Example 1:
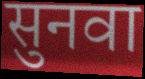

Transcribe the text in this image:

सुनवा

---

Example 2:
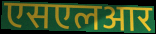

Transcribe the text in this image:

एसएलआर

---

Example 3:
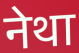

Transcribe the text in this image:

नेथा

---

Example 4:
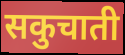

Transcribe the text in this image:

सकुचाती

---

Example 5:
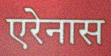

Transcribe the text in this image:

एरेनास